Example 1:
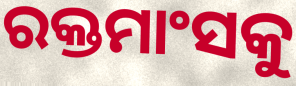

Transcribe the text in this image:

ରକ୍ତମାଂସକୁ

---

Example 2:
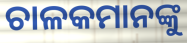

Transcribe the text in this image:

ଚାଳକମାନଙ୍କୁ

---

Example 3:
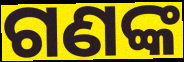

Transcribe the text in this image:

ଗଣଙ୍କ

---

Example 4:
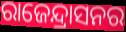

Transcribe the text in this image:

ରାଜେନ୍ଦ୍ରାସନର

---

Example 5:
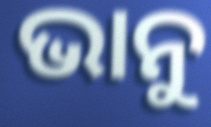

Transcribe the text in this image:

ଭାନୁ